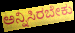
ಅನ್ನಿಸಿರಬೇಕು